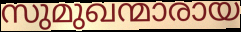
സുമുഖന്മാരായ